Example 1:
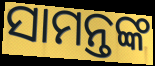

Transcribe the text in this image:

ସାମନ୍ତଙ୍କ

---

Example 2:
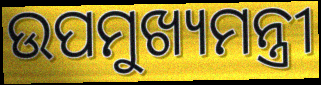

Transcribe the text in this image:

ଉପମୁଖ୍ୟମନ୍ତ୍ରୀ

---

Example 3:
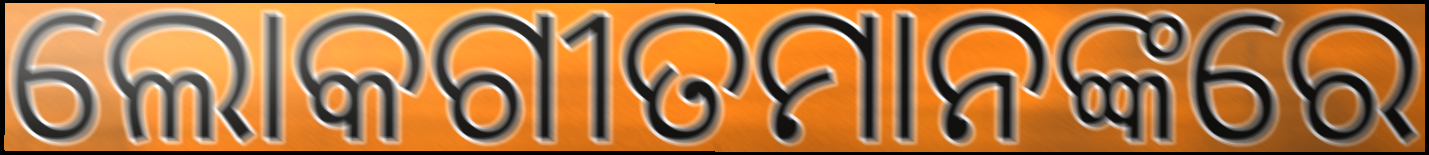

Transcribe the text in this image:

ଲୋକଗୀତମାନଙ୍କରେ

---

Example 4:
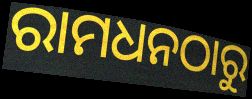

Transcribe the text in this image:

ରାମଧନଠାରୁ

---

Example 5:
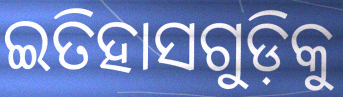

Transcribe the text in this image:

ଇତିହାସଗୁଡ଼ିକୁ